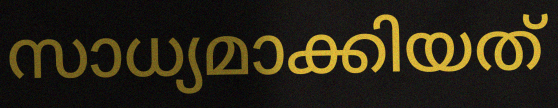
സാധ്യമാക്കിയത്